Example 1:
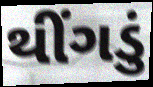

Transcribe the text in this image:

થીંગડું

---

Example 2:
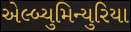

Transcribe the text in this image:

એલ્બ્યુમિન્યુરિયા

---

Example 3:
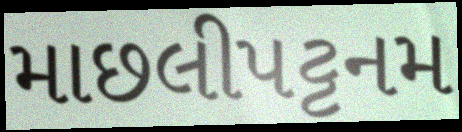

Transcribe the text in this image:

માછલીપટ્ટનમ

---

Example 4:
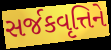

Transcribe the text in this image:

સર્જકવૃત્તિને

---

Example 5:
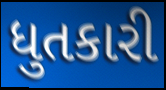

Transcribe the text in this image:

ધુતકારી